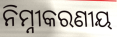
ନିମ୍ନୀକରଣୀୟ